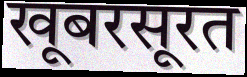
खूबरसूरत